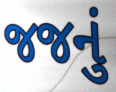
જજનું